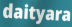
daityara